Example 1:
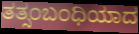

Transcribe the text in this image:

ತತ್ಸಂಬಂಧಿಯಾದ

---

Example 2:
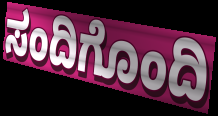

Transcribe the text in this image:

ಸಂದಿಗೊಂದಿ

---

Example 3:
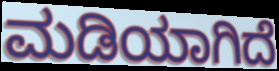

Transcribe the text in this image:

ಮಡಿಯಾಗಿದೆ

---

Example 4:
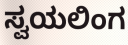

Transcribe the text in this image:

ಸ್ವಯಲಿಂಗ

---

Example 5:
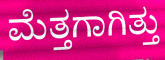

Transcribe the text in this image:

ಮೆತ್ತಗಾಗಿತ್ತು